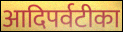
आदिपर्वटीका